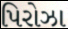
પિરોઝા